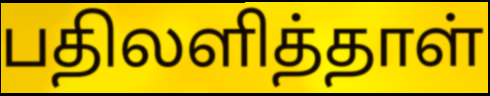
பதிலளித்தாள்